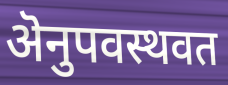
ऄनुपवस्थवत